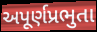
અપૂર્ણપ્રભુતા